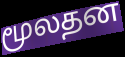
மூலதன